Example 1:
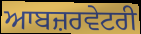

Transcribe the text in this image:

ਆਬਜ਼ਰਵੇਟਰੀ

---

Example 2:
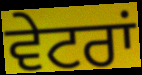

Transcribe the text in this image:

ਵੇਟਰਾਂ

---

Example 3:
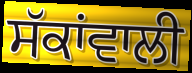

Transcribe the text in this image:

ਸੱਕਾਂਵਾਲੀ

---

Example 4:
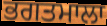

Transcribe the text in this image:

ਭਗਤਮਾਲਾ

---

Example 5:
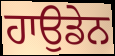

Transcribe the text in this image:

ਹਾਉਡੇਨ